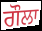
ਗੌਲਾ